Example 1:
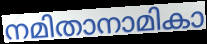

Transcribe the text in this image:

നമിതാനാമികാ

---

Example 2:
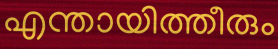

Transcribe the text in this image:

എന്തായിത്തീരും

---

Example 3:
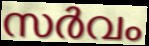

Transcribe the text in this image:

സർവം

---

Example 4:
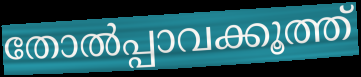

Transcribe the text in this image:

തോൽപ്പാവക്കൂത്ത്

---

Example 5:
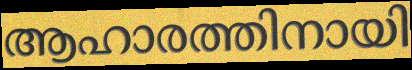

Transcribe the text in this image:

ആഹാരത്തിനായി